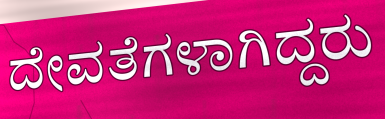
ದೇವತೆಗಳಾಗಿದ್ದರು